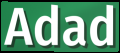
Adad